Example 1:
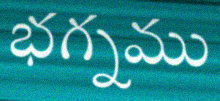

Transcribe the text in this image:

భగ్నము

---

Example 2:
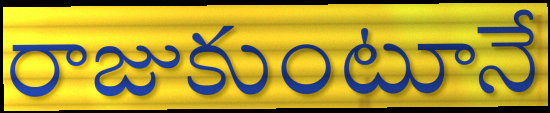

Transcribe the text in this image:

రాజుకుంటూనే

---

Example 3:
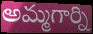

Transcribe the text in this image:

అమ్మగార్ని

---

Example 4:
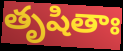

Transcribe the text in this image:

తృషితాః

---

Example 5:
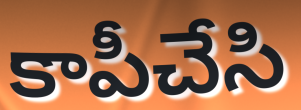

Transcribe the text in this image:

కాపీచేసి